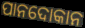
ପାନଦୋକାନ